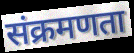
संक्रमणता